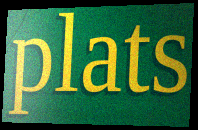
plats